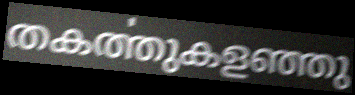
തകൎത്തുകളഞ്ഞു